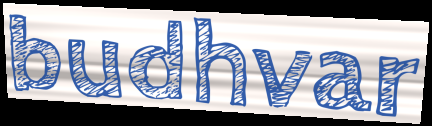
budhvar